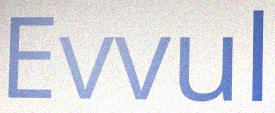
Evvul